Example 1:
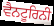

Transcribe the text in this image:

ਵੈਨਟੂਰਿਨੀ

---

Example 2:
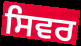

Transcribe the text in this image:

ਸਿਵਰ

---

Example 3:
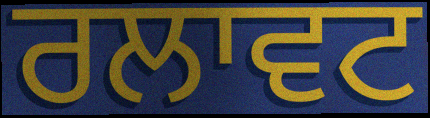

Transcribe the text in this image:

ਰਲਾਵਟ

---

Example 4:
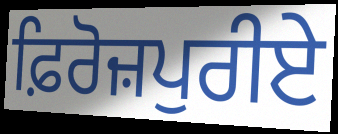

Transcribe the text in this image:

ਫ਼ਿਰੋਜ਼ਪੁਰੀਏ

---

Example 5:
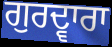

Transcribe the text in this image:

ਗੁਰਦ੍ਵਾਰਾ